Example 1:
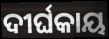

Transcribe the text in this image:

ଦୀର୍ଘକାୟ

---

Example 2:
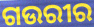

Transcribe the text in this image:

ଗଉରୀର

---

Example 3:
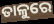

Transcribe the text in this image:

ତାଳୁରେ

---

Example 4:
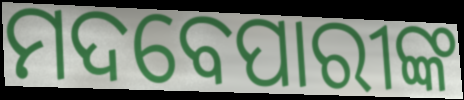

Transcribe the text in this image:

ମଦବେପାରୀଙ୍କ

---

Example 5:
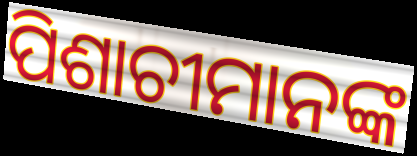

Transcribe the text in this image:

ପିଶାଚୀମାନଙ୍କ